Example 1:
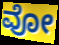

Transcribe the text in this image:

ವೋ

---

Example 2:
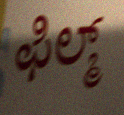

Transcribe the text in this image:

ಫಿಲ್ಮ್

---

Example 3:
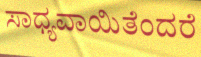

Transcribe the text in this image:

ಸಾಧ್ಯವಾಯಿತೆಂದರೆ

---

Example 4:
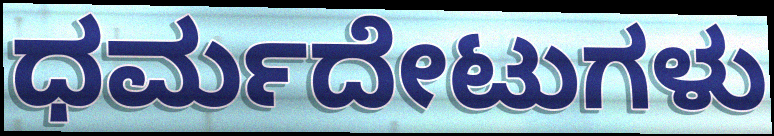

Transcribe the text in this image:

ಧರ್ಮದೇಟುಗಳು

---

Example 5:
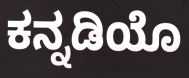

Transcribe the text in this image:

ಕನ್ನಡಿಯೊ